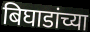
बिघाडांच्या